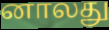
னாலது